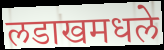
लडाखमधले